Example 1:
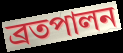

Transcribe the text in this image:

ব্রতপালন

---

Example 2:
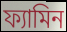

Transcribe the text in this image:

ফ্যামিন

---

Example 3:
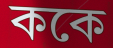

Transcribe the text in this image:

ককে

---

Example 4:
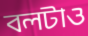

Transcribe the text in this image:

বলটাও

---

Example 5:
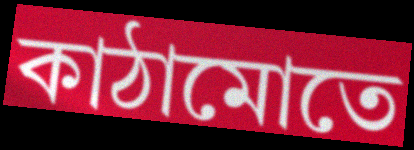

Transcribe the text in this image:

কাঠামোতে